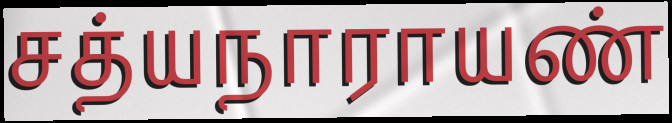
சத்யநாராயண்